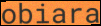
obiara